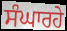
ਸੰਘਾਰਹੇ